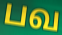
பவ